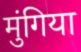
मुंगिया